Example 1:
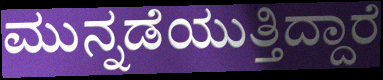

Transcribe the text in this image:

ಮುನ್ನಡೆಯುತ್ತಿದ್ದಾರೆ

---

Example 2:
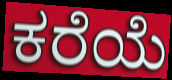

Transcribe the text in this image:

ಕರೆಯೆ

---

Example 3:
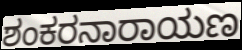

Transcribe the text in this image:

ಶಂಕರನಾರಾಯಣ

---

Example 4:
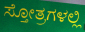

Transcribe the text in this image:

ಸ್ತೋತ್ರಗಳಲ್ಲಿ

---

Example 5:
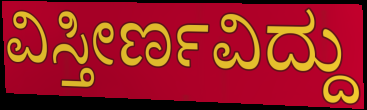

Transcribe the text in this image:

ವಿಸ್ತೀರ್ಣವಿದ್ದು